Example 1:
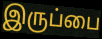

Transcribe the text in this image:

இருப்பை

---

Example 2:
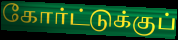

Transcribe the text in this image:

கோர்ட்டுக்குப்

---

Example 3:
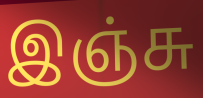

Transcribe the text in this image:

இஞ்சு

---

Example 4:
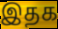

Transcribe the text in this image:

இதக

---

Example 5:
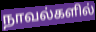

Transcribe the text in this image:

நாவல்களில்